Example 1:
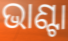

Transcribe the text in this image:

ଭାଣ୍ଟା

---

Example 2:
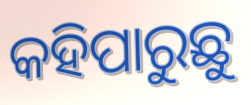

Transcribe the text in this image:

କହିପାରୁଛୁ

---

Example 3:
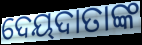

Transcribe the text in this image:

ଦେୟଦାତାଙ୍କ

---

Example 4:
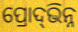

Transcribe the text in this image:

ପ୍ରୋଦ୍‌ଭିନ୍ନ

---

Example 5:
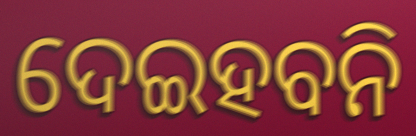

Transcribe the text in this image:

ଦେଇହବନି